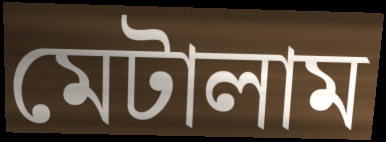
মেটালাম